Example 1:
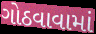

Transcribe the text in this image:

ગોઠવાવામાં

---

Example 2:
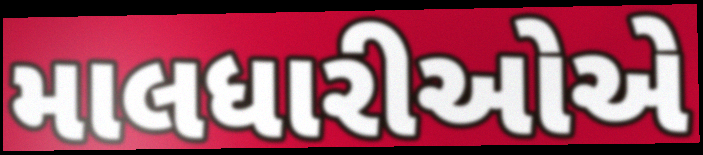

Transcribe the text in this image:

માલધારીઓએ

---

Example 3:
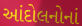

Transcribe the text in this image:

આંદોલનોનાં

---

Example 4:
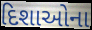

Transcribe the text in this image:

દિશાઓના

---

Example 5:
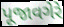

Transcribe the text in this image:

પૂજાવગેરે